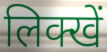
लिक्खें